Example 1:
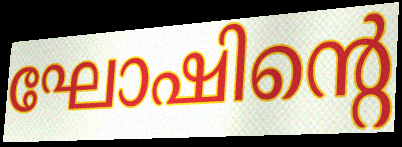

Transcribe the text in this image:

ഘോഷിന്റെ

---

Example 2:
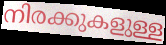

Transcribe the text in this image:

നിരക്കുകളുള്ള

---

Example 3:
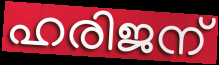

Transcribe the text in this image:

ഹരിജന്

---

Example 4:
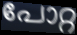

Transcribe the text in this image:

പോറ്റ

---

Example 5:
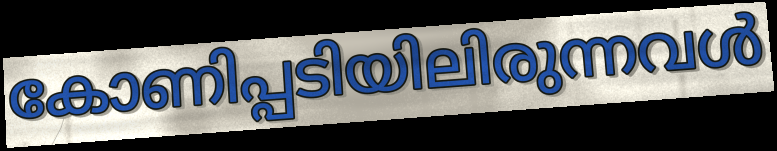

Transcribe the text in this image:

കോണിപ്പടിയിലിരുന്നവൾ